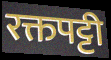
रक्तपट्टी